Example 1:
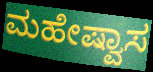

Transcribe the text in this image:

ಮಹೇಷ್ವಾಸ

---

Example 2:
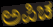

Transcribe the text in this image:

ಅಪಿಚ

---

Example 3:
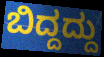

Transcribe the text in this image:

ಬಿದ್ದದ್ದು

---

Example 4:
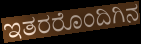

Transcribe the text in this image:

ಇತರರೊಂದಿಗಿನ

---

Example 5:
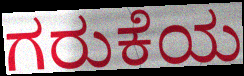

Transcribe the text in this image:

ಗರುಕೆಯ